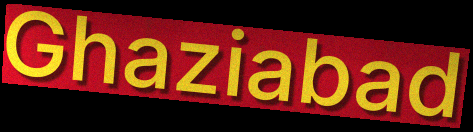
Ghaziabad